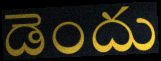
డెందు